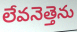
లేవనెత్తెను